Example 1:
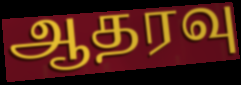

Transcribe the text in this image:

ஆதரவு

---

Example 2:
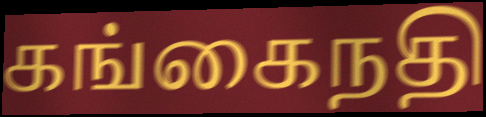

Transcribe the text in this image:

கங்கைநதி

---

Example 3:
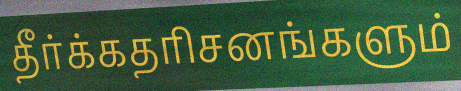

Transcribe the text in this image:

தீர்க்கதரிசனங்களும்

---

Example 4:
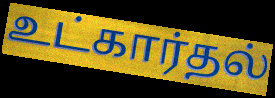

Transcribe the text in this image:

உட்கார்தல்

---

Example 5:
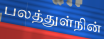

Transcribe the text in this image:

பலத்துள்நின்